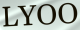
LYOO